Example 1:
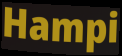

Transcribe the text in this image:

Hampi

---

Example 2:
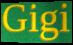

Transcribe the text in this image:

Gigi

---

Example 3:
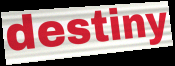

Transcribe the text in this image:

destiny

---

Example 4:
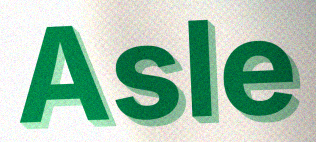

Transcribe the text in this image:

Asle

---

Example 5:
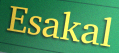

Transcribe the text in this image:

Esakal